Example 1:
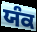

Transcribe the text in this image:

ਯੰਕ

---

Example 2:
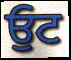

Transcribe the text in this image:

ਓੁਟ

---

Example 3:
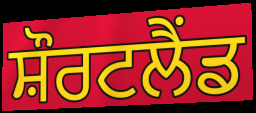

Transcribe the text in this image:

ਸ਼ੌਰਟਲੈਂਡ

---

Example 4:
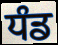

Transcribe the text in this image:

ਧੰਡ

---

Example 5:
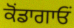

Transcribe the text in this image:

ਕੋਂਡਾਗਾਓਂ